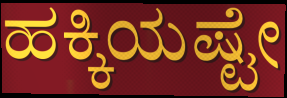
ಹಕ್ಕಿಯಷ್ಟೇ